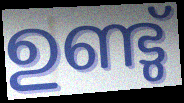
ഉണ്ടു്